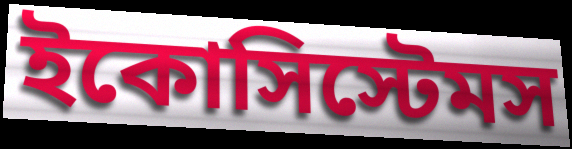
ইকোসিস্টেমস